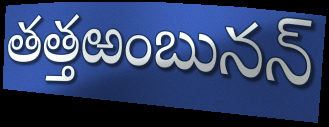
తత్తఱంబునన్